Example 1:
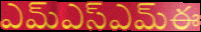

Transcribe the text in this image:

ఎమ్ఎస్ఎమ్ఈ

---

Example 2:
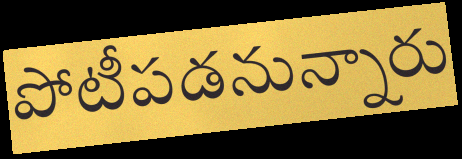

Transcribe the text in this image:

పోటీపడనున్నారు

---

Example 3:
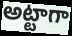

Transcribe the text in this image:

అట్టాగా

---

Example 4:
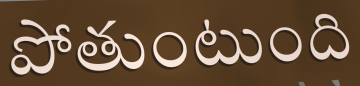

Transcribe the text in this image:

పోతుంటుంది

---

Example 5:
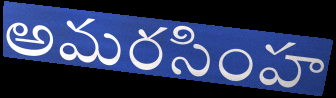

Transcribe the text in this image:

అమరసింహ